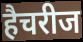
हैचरीज